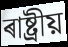
ৰাষ্ট্ৰীয়